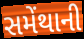
સમેંથાની